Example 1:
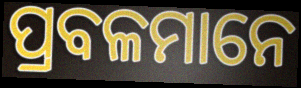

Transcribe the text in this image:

ପ୍ରବଳମାନେ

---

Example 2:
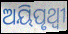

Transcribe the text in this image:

ଅୟିପୃଥ୍ୱୀ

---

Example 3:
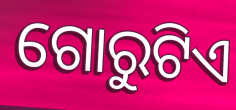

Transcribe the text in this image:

ଗୋରୁଟିଏ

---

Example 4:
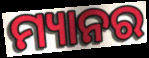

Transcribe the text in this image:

ମ୍ୟାନର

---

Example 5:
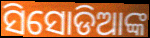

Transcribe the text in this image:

ସିସୋଡିଆଙ୍କ